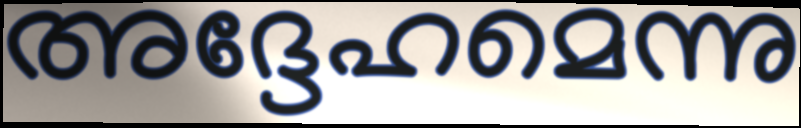
അദ്ദേഹമെന്നു